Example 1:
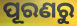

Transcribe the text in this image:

ପୂରଣରୁ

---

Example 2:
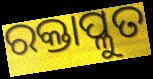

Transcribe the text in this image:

ରକ୍ତାପ୍ଳୁତ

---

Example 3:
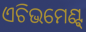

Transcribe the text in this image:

ଏଚିଭମେଣ୍ଟ୍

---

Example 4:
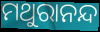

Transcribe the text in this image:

ମଥୁରାନନ୍ଦ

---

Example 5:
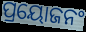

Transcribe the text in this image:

ପ୍ରୟୋଜନଂ